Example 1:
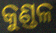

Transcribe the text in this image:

କୁଣ୍ଡଳ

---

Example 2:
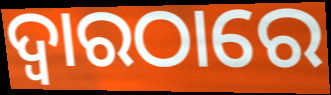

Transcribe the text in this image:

ଦ୍ୱାରଠାରେ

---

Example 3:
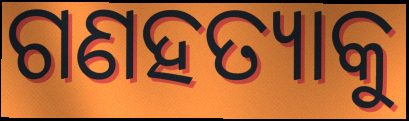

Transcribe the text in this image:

ଗଣହତ୍ୟାକୁ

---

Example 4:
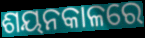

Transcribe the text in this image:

ଶୟନକାଳରେ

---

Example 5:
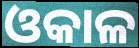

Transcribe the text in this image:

ଓକାଳ